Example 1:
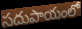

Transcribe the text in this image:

సదుపాయంలో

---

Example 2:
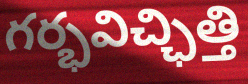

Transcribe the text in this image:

గర్భవిచ్ఛిత్తి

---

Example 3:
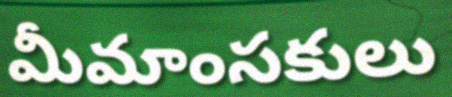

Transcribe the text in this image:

మీమాంసకులు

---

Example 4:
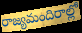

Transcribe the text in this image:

రాజ్యమందిరాల్లో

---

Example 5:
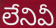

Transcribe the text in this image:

లేనివీ